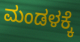
ಮಂಡಳಕ್ಕೆ